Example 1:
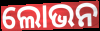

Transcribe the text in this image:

ଲୋଭନ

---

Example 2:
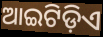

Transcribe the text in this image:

ଆଇଟିଡ଼ିଏ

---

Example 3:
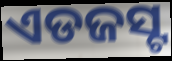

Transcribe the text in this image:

ଏଡଜସ୍ଟ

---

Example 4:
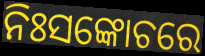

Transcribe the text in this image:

ନିଃସଙ୍କୋଚରେ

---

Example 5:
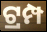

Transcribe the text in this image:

ଟ୍ରମ୍ପ